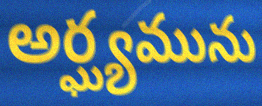
అర్ఘ్యమును